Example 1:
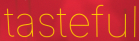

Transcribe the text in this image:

tasteful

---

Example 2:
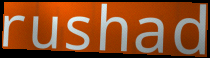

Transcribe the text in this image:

rushad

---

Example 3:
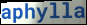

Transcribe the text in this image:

aphylla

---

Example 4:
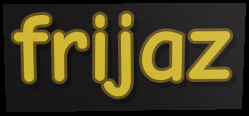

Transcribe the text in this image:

frijaz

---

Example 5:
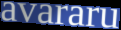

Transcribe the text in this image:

avararu